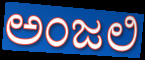
ಅಂಜಲಿ